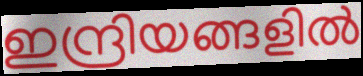
ഇന്ദ്രിയങ്ങളിൽ